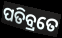
ପତିବ୍ରତେ